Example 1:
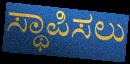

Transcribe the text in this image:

ಸ್ಥಾಪಿಸಲು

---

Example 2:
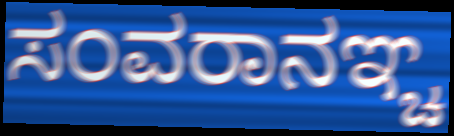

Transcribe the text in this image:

ಸಂವರಾನಞ್ಚ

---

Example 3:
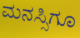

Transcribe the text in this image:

ಮನಸ್ಸಿಗೂ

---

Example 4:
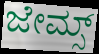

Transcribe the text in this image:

ಜೇಮ್ಸ್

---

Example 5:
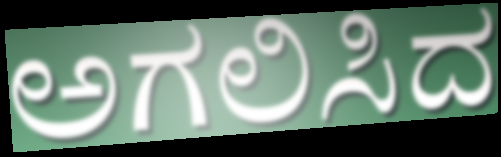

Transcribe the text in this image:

ಅಗಲಿಸಿದ